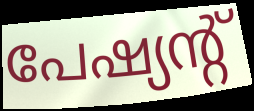
പേഷ്യന്റ്